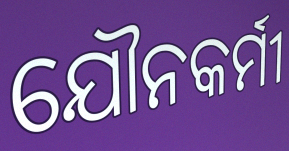
ଯୌନକର୍ମୀ